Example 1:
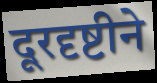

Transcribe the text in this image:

दूरदृष्टीने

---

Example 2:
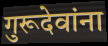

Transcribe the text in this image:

गुरूदेवांना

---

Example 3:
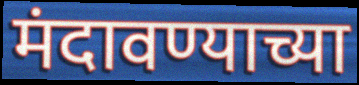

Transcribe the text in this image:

मंदावण्याच्या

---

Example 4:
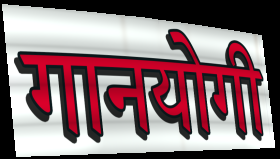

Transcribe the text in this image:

गानयोगी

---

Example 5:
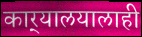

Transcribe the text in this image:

कार्यालयालाही